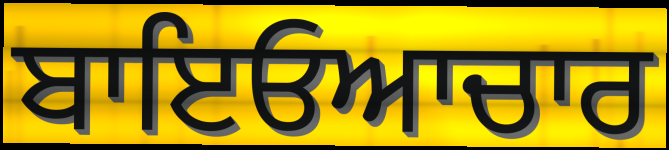
ਬਾਇਓਆਚਾਰ